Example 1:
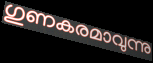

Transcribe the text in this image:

ഗുണകരമാവുന്നു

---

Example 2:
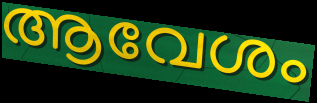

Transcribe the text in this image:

ആവേശം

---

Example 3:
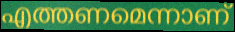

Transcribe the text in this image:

എത്തണമെന്നാണ്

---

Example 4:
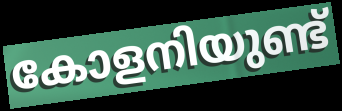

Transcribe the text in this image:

കോളനിയുണ്ട്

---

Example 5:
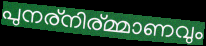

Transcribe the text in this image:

പുനര്നിര്മ്മാണവും